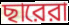
ছারেরা